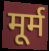
मूर्म